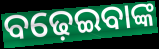
ବଢ଼େଇବାଙ୍କ